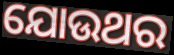
ଯୋଉଥର